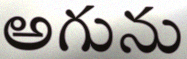
అగును